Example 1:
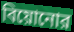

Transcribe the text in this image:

বিয়োনোর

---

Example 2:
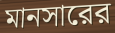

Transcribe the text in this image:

মানসারের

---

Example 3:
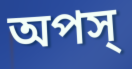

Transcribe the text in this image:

অপস্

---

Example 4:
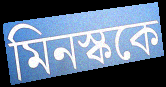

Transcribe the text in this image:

মিনস্ককে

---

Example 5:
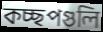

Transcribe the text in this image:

কচ্ছপগুলি